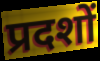
प्रदशों